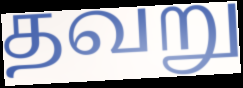
தவறு